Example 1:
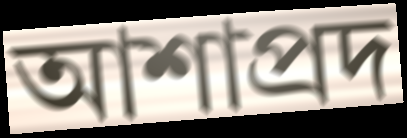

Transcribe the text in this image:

আশাপ্রদ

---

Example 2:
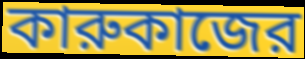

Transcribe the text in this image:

কারুকাজের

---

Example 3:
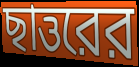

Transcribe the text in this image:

ছাত্তরের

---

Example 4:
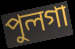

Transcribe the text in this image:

পুলগা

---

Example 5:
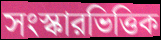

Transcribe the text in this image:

সংস্কারভিত্তিক